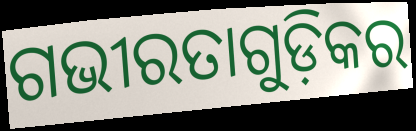
ଗଭୀରତାଗୁଡ଼ିକର